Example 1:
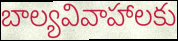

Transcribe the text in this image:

బాల్యవివాహాలకు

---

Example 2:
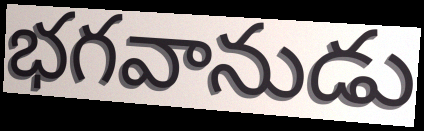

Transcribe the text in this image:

భగవానుడు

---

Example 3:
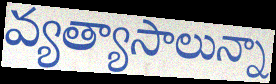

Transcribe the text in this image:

వ్యత్యాసాలున్నా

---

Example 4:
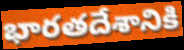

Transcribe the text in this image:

భారతదేశానికి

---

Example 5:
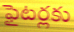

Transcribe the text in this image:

ఫైటర్లకు